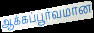
ஆக்கப்பூர்வமான